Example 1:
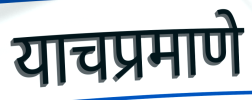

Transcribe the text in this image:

याचप्रमाणे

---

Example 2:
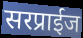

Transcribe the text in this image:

सरप्राईज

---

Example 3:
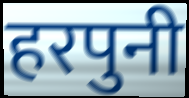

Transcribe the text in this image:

हरपुनी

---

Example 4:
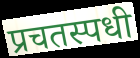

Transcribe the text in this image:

प्रचतस्पधी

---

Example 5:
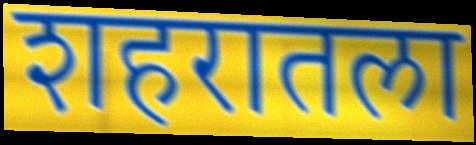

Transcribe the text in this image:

शहरातला